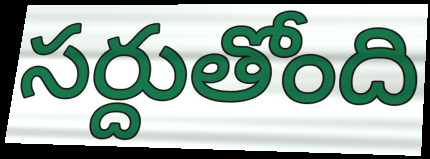
సర్దుతోంది